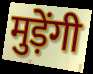
मुड़ेंगी